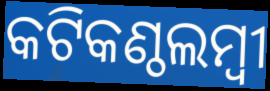
କଟିକଣ୍ଠଲମ୍ବୀ